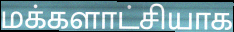
மக்களாட்சியாக